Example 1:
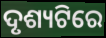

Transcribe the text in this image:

ଦୃଶ୍ୟଟିରେ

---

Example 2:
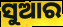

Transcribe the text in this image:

ସୁଆର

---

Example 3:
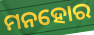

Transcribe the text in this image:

ମନହୋର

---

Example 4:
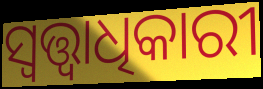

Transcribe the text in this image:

ସ୍ବତ୍ତ୍ବାଧିକାରୀ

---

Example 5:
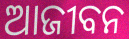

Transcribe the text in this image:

ଆଜୀବନ